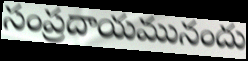
సంప్రదాయమునందు